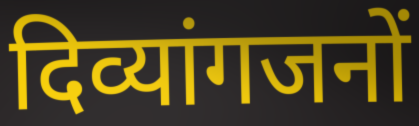
दिव्यांगजनों